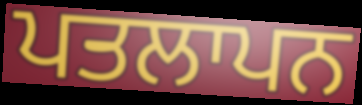
ਪਤਲਾਪਨ